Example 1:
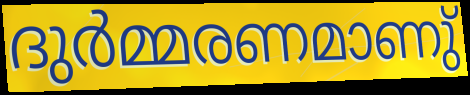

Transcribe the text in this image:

ദുർമ്മരണമാണു്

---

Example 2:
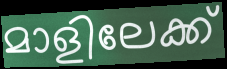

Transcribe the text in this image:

മാളിലേക്ക്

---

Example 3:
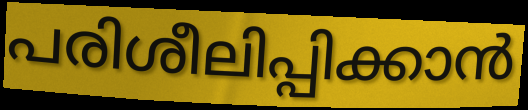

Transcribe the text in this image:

പരിശീലിപ്പിക്കാൻ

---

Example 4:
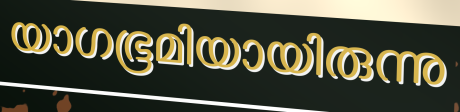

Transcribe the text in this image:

യാഗഭൂമിയായിരുന്നു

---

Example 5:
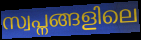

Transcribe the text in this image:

സ്വപ്നങ്ങളിലെ